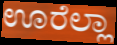
ಊರೆಲ್ಲಾ